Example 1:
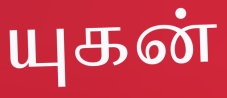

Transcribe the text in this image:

யுகன்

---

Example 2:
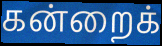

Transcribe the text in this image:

கன்றைக்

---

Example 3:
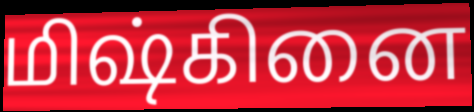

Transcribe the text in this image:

மிஷ்கினை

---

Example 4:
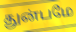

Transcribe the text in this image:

துன்பமே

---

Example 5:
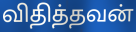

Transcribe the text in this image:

விதித்தவன்